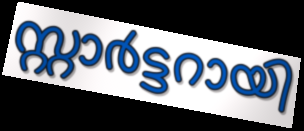
സ്റ്റാർട്ടറായി